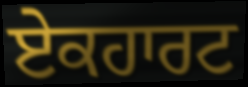
ਏਕਹਾਰਟ